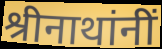
श्रीनाथांनीं